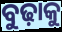
ବୁଢ଼ାକୁ